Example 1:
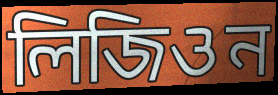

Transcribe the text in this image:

লিজিওন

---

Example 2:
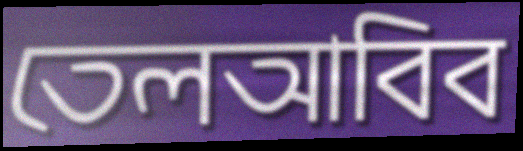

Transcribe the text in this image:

তেলআবিব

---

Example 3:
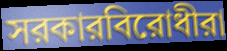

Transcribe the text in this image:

সরকারবিরোধীরা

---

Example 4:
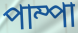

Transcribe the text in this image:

পাম্পা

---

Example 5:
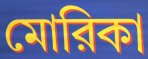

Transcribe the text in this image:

মোরিকা